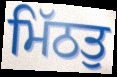
ਮਿੱਠਤੁ